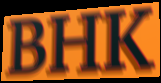
BHK